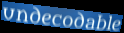
undecodable